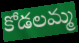
కోడలమ్మ